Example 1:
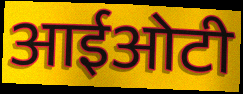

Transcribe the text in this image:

आईओटी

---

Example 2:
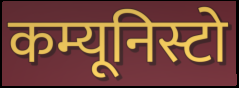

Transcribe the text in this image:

कम्यूनिस्टो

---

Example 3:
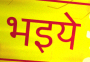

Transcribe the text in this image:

भइये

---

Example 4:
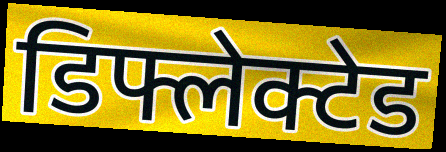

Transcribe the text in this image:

डिफ्लेक्टेड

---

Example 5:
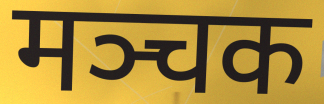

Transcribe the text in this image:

मञ्चक